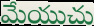
మేయుచు